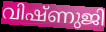
വിഷ്ണുജി